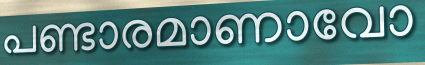
പണ്ടാരമാണാവോ